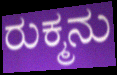
ರುಕ್ಮನು